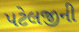
પટેલજીની